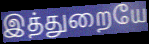
இத்துறையே